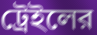
ট্রেইলের